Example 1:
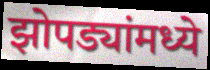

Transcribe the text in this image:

झोपड्यांमध्ये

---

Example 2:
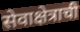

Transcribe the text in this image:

सेवाक्षेत्राची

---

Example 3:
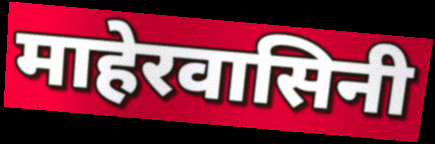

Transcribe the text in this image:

माहेरवासिनी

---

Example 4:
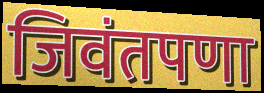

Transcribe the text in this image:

जिवंतपणा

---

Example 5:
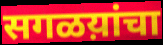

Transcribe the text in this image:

सगळय़ांचा